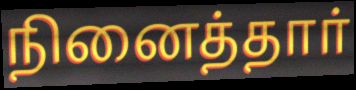
நினைத்தார்